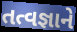
તત્વજ્ઞાને